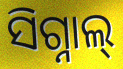
ସିଗ୍ନାଲ୍